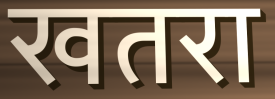
खतरा